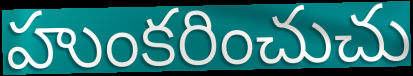
హుంకరించుచు